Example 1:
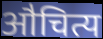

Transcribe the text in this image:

औचित्य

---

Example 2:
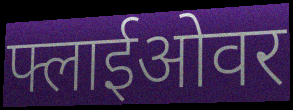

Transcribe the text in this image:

फ्लाईओवर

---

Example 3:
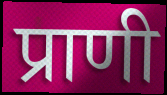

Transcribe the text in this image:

प्राणी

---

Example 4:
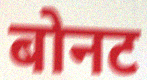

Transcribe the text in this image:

बोनट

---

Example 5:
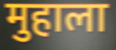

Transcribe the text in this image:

मुहाला